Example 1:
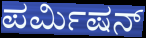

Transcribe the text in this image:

ಪರ್ಮಿಷನ್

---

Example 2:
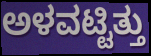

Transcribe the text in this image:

ಅಳವಟ್ಟಿತ್ತು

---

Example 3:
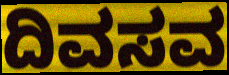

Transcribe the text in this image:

ದಿವಸವ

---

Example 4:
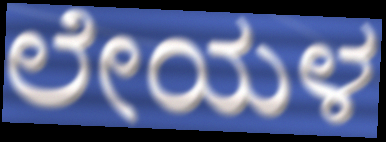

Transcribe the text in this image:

ಲೇಯಳ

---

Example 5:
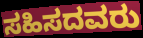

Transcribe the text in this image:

ಸಹಿಸದವರು